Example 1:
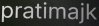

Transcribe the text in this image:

pratimajk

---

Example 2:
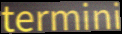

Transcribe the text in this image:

termini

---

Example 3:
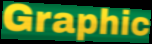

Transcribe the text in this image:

Graphic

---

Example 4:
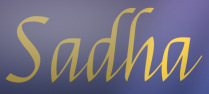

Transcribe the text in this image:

Sadha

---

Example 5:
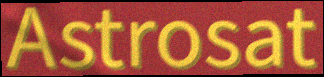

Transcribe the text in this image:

Astrosat